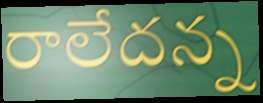
రాలేదన్న